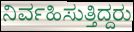
ನಿರ್ವಹಿಸುತ್ತಿದ್ದರು